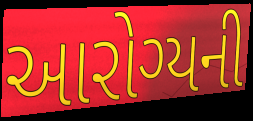
આરોગ્યની